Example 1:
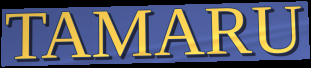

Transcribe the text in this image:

TAMARU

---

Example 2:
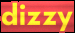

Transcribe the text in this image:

dizzy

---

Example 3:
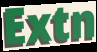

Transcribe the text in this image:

Extn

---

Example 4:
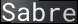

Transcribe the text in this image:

Sabre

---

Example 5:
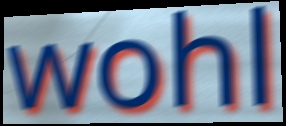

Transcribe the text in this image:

wohl